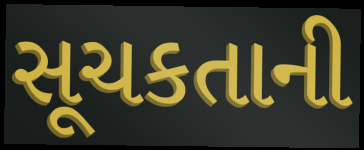
સૂચકતાની